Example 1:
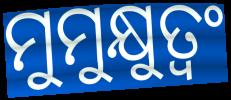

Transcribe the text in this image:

ମୁମୁକ୍ଷୁତ୍ୱଂ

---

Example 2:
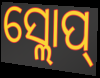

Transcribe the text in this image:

ସ୍ଲୋପ୍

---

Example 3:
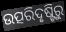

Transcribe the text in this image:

ଉତ୍ପରିଦୃଷ୍ଟିରୁ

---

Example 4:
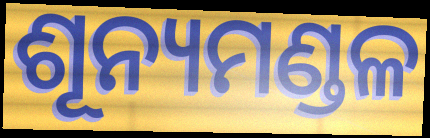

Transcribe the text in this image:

ଶୂନ୍ୟମଣ୍ଡଳ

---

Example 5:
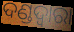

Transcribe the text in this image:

ଦଣ୍ଡଦ୍ବାରା